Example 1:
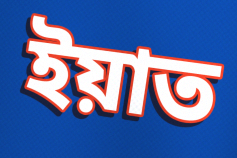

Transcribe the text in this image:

ইয়াত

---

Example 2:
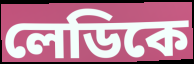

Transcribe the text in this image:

লেডিকে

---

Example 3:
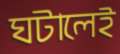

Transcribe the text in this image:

ঘটালেই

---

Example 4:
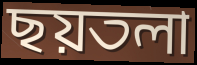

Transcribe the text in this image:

ছয়তলা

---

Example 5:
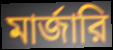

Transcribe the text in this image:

মার্জারি